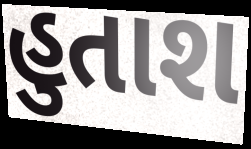
હુતાશ